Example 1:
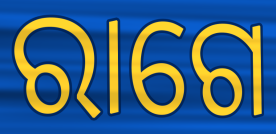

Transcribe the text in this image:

ରାଗେ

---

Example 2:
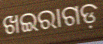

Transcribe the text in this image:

ଖଇରାଗଡ଼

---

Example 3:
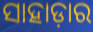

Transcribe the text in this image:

ସାହାଡ଼ାର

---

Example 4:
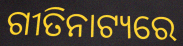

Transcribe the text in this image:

ଗୀତିନାଟ୍ୟରେ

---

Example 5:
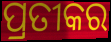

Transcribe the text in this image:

ପ୍ରତୀକର